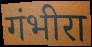
गंभीरा